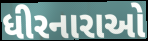
ધીરનારાઓ